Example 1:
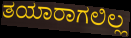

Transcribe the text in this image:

ತಯಾರಾಗಲಿಲ್ಲ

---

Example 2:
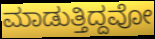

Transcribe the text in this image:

ಮಾಡುತ್ತಿದ್ದವೋ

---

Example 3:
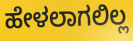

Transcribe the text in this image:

ಹೇಳಲಾಗಲಿಲ್ಲ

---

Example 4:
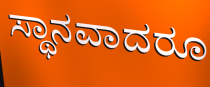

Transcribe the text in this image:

ಸ್ಥಾನವಾದರೂ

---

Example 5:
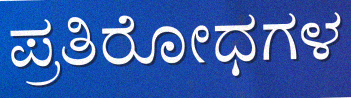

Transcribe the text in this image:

ಪ್ರತಿರೋಧಗಳ